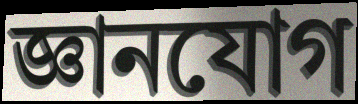
জ্ঞানযোগ